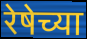
रेषेच्या